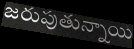
జరుపుతున్నాయి